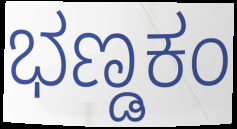
ಭಣ್ಡಕಂ